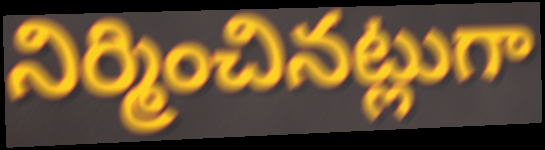
నిర్మించినట్లుగా